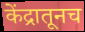
केंद्रातूनच